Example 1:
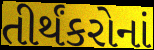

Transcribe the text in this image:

તીર્થંકરોનાં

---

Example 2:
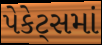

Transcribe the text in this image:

પેકેટ્સમાં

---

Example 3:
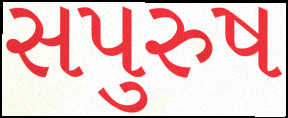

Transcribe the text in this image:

સપુરુષ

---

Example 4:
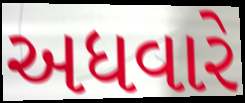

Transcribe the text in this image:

અધવારે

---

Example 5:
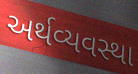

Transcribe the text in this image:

અર્થવ્યવસ્થા